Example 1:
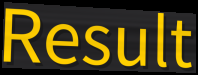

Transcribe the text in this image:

Result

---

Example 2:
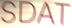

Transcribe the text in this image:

SDAT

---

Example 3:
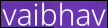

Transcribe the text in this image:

vaibhav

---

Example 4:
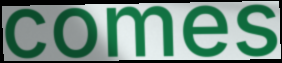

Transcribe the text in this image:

comes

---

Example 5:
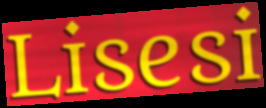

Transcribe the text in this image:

Lisesi